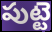
పుట్టె